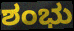
ಶಂಭು